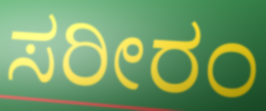
ಸರೀರಂ